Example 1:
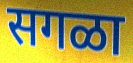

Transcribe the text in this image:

सगळा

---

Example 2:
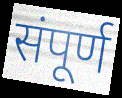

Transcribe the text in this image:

संपूर्ण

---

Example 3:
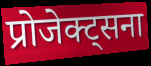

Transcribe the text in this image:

प्रोजेक्ट्सना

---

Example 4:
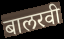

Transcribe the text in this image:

बालरवी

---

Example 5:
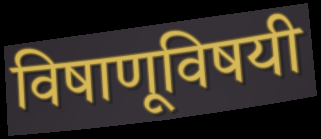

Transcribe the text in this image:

विषाणूविषयी